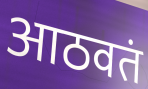
आठवतं